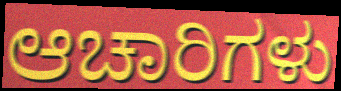
ಆಚಾರಿಗಳು